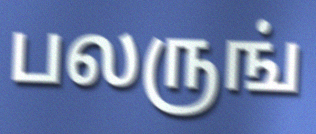
பலருங்